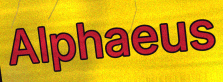
Alphaeus